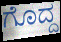
ಗೊದ್ದ